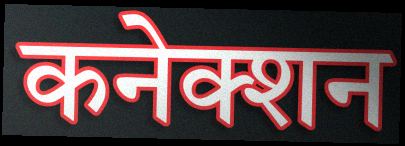
कनेक्‍शन